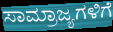
ಸಾಮ್ರಾಜ್ಯಗಳಿಗೆ